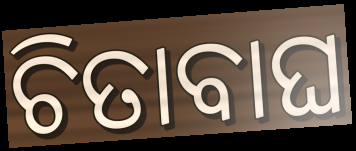
ଚିତାବାଘ